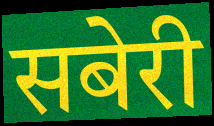
सबेरी